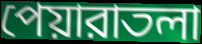
পেয়ারাতলা